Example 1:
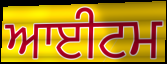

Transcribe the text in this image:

ਆਈਟਮ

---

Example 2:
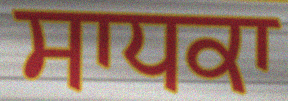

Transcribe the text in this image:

ਸਾਧਕਾ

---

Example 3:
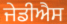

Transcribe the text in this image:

ਜੇਡੀਐਸ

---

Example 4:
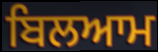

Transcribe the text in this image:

ਬਿਲਆਮ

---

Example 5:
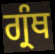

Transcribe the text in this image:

ਗ੍ਰੰਥ